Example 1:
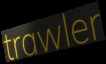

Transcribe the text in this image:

trawler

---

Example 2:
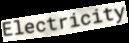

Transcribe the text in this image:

Electricity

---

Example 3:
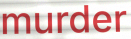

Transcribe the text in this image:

murder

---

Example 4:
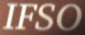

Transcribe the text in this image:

IFSO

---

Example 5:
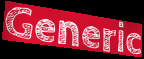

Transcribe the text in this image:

Generic